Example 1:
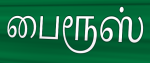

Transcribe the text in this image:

பைரூஸ்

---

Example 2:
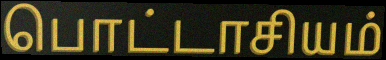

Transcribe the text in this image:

பொட்டாசியம்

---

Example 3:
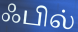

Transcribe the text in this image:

ஃபில்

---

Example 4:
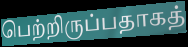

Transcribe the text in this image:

பெற்றிருப்பதாகத்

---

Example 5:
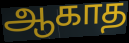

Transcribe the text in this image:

ஆகாத